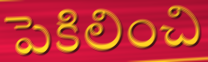
పెకిలించి